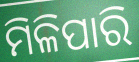
ମିଳିପାରି